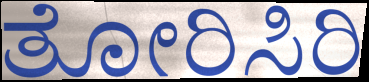
ತೋರಿಸಿರಿ